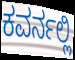
ಕವರ್ನಲ್ಲಿ